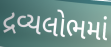
દ્રવ્યલોભમાં